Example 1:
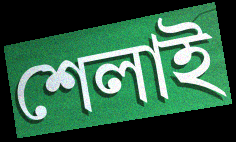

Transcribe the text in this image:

শেলাই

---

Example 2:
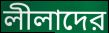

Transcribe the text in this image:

লীলাদের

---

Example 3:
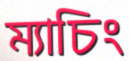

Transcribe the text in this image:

ম্যাচিং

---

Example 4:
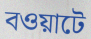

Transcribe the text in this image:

বওয়াটে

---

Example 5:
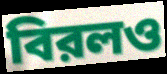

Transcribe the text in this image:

বিরলও